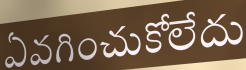
ఏవగించుకోలేదు